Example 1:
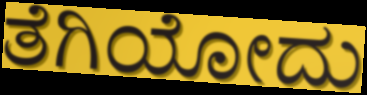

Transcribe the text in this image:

ತೆಗಿಯೋದು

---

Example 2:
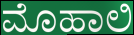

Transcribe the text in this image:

ಮೊಹಾಲಿ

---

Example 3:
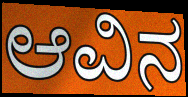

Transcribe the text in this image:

ಆವಿನ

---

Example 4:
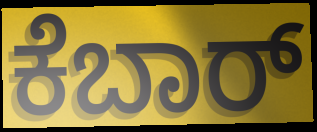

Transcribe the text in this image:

ಕೆಬಾರ್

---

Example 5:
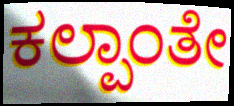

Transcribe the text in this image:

ಕಲ್ಪಾಂತೇ